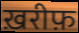
ख़रीफ़